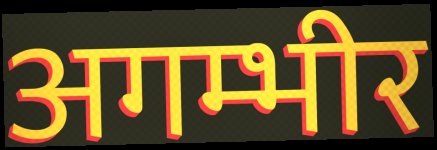
अगम्भीर